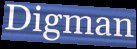
Digman